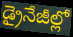
డ్రైనేజీల్లో